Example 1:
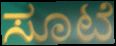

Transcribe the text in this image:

ಸೂಟೆ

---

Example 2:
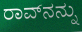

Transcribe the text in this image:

ರಾವ್‌ನನ್ನು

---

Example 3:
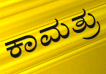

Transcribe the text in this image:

ಕಾಮತ್ರು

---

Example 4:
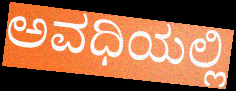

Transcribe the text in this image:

ಅವಧಿಯಲ್ಲಿ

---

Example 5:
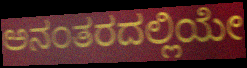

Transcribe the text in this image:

ಅನಂತರದಲ್ಲಿಯೇ